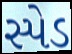
સ્પેડ